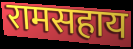
रामसहाय